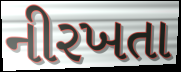
નીરખતા